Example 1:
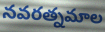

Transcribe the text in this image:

నవరత్నమాల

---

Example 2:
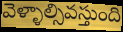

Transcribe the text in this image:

వెళ్ళాల్సివస్తుంది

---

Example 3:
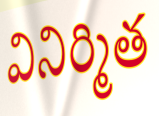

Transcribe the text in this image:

వినిర్మిత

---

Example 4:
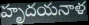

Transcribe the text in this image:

హృదయనాళ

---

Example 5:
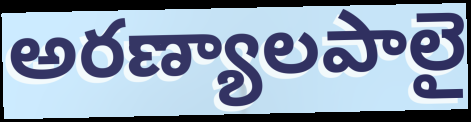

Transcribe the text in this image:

అరణ్యాలపాలై